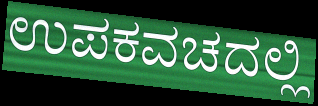
ಉಪಕವಚದಲ್ಲಿ